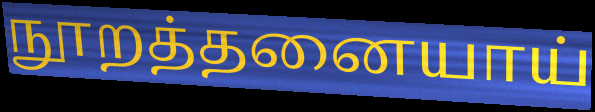
நூறத்தனையாய்